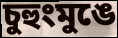
চুহুংমুঙে